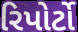
રિપોર્ટો